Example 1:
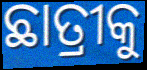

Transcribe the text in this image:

ଛାତ୍ରୀକୁ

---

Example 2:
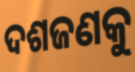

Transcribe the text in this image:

ଦଶଜଣକୁ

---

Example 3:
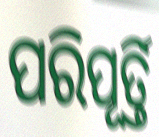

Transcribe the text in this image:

ପରିପୂର୍ତ୍ତି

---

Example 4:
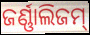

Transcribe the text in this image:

ଜର୍ଣ୍ଣାଲିଜମ୍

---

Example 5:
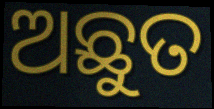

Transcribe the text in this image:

ଅଛୁତ